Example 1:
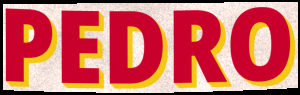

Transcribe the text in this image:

PEDRO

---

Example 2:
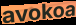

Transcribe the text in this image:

avokoa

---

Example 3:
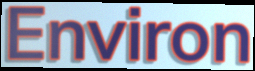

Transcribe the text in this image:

Environ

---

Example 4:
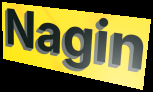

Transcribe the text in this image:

Nagin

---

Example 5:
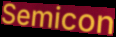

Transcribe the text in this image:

Semicon